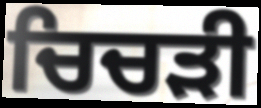
ਚਿਚੜੀ